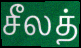
சீலத்